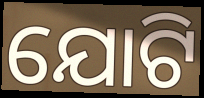
ଯୋଟି